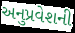
અનુપ્રવેશની